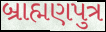
બ્રાહ્મણપુત્ર